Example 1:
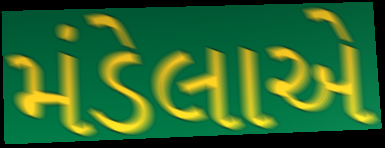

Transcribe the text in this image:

મંડેલાએ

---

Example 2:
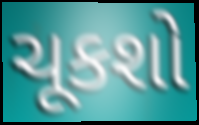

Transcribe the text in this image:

ચૂકશો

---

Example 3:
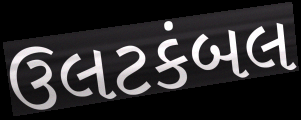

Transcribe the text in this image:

ઉલટકંબલ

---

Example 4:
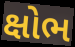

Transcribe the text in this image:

ક્ષોભ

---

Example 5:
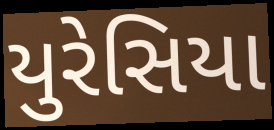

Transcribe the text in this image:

યુરેસિયા